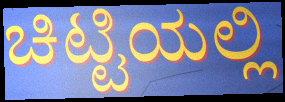
ಚಿಟ್ಟಿಯಲ್ಲಿ